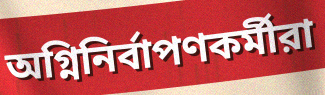
অগ্নিনির্বাপণকর্মীরা